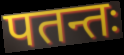
पतन्तः